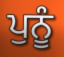
ਪੁਨੂੰ